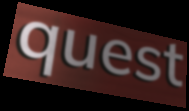
quest